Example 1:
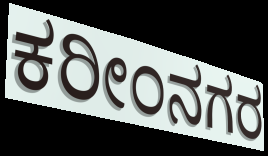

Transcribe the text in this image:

ಕರೀಂನಗರ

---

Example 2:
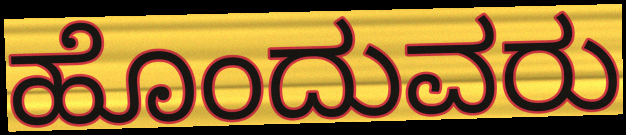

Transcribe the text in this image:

ಹೊಂದುವರು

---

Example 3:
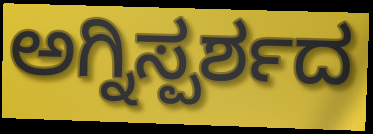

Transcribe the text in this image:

ಅಗ್ನಿಸ್ಪರ್ಶದ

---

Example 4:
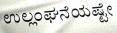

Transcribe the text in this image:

ಉಲ್ಲಂಘನೆಯಷ್ಟೇ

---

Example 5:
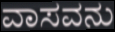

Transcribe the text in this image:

ವಾಸವನು